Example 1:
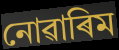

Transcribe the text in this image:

নোৱাৰিম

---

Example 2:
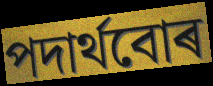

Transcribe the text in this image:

পদাৰ্থবোৰ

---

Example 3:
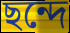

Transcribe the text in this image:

ছন্দে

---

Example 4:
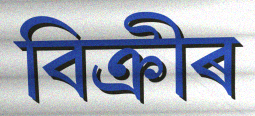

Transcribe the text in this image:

বিক্ৰীৰ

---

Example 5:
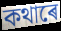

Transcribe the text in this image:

কথাৰে